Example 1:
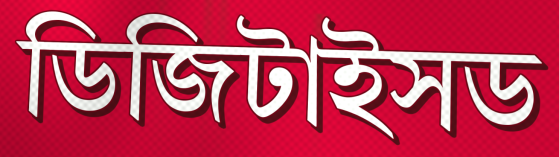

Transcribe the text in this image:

ডিজিটাইসড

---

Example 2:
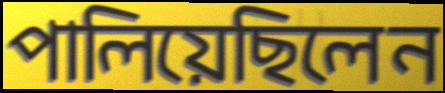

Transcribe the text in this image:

পালিয়েছিলেন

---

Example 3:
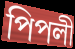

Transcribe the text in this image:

পিপলী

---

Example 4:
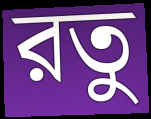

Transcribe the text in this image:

রতু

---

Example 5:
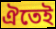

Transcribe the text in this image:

ঐতেই